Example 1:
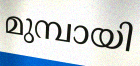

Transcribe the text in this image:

മുമ്പായി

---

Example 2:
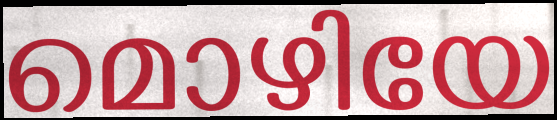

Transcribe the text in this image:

മൊഴിയേ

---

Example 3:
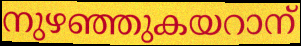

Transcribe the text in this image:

നുഴഞ്ഞുകയറാന്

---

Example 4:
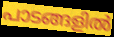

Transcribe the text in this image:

പാടങ്ങളിൽ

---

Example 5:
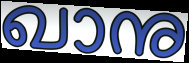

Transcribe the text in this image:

ഖാനു